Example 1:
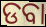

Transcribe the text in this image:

ଡବା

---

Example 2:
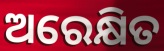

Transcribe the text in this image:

ଅରେକ୍ଷିତ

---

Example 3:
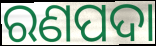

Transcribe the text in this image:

ରଣପଦା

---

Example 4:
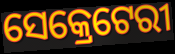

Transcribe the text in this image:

ସେକ୍ରେଟେରୀ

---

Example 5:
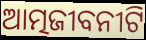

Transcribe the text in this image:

ଆତ୍ମଜୀବନୀଟି